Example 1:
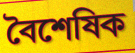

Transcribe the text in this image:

বৈশেষিক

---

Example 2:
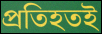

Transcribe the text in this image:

প্রতিহতই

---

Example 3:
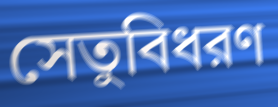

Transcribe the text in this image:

সেতুবিধরণ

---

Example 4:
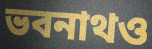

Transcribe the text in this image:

ভবনাথও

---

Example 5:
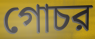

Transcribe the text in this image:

গোচর